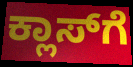
ಕ್ಲಾಸ್‍ಗೆ